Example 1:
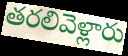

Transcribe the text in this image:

తరలివెళ్లారు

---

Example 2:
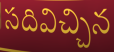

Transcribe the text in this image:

సదివిచ్చిన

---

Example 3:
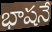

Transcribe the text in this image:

భాషనే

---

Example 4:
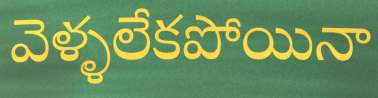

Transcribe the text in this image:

వెళ్ళలేకపోయినా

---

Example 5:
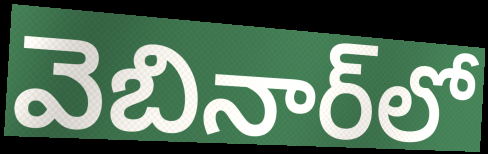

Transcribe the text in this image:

వెబినార్‌లో